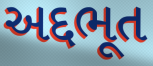
અદ્દભૂત